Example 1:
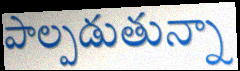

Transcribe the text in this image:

పాల్పడుతున్నా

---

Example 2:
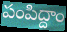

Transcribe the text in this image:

పంపిద్దాం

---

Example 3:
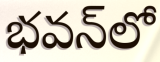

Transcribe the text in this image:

భవన్‌లో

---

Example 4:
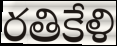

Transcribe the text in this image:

రతికేళి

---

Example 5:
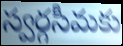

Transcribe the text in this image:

స్వర్గసీమకు